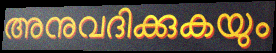
അനുവദിക്കുകയും